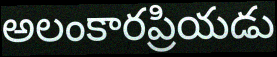
అలంకారప్రియడు